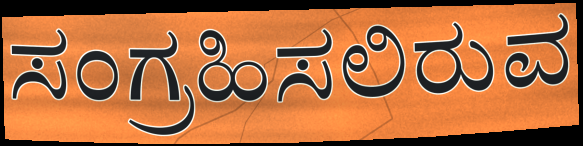
ಸಂಗ್ರಹಿಸಲಿರುವ